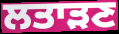
ਲਤਾੜਣ